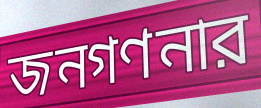
জনগণনার